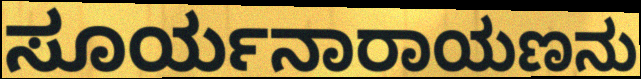
ಸೂರ್ಯನಾರಾಯಣನು